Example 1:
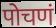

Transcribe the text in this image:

पोचणं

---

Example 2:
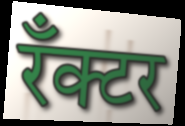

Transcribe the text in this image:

रँक्टर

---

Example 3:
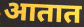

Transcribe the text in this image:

आतात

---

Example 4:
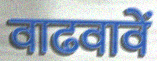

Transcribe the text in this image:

वाढवावें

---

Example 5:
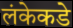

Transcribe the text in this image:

लंकेकडे